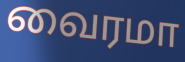
வைரமா